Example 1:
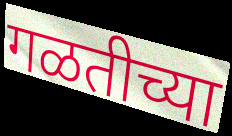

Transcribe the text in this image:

गळतीच्या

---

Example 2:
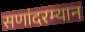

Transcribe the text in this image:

सणांदरम्यान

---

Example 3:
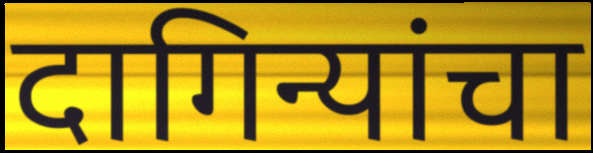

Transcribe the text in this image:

दागिन्यांचा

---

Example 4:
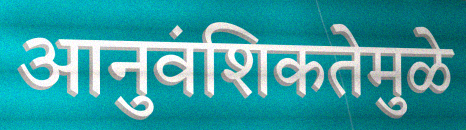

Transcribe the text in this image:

आनुवंशिकतेमुळे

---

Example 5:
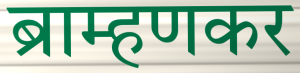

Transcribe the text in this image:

ब्राम्हणकर